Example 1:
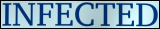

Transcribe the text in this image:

INFECTED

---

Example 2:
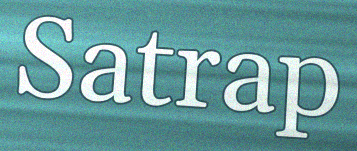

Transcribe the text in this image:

Satrap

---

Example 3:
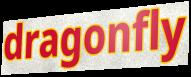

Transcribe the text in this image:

dragonfly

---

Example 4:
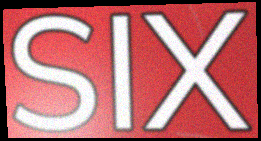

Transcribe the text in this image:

SIX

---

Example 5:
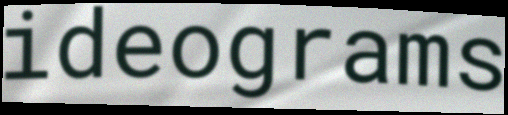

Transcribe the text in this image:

ideograms